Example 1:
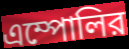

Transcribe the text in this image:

এম্পোলির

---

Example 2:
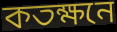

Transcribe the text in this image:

কতক্ষনে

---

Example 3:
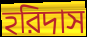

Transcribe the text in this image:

হরিদাস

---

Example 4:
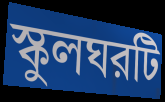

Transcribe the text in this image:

স্কুলঘরটি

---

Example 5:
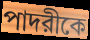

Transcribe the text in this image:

পাদরীকে